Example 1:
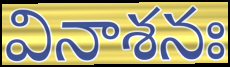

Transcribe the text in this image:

వినాశనః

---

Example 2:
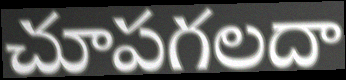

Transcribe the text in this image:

చూపగలదా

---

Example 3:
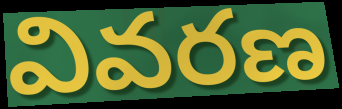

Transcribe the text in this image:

వివరణ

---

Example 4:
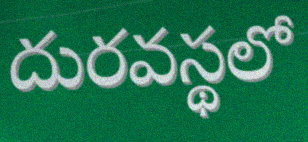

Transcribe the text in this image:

దురవస్థలో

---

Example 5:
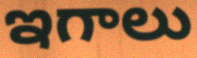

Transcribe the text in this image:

ఇగాలు